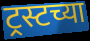
ट्रस्टच्या